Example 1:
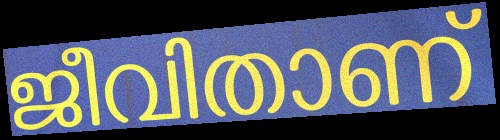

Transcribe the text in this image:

ജീവിതാണ്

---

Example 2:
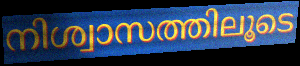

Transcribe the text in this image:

നിശ്വാസത്തിലൂടെ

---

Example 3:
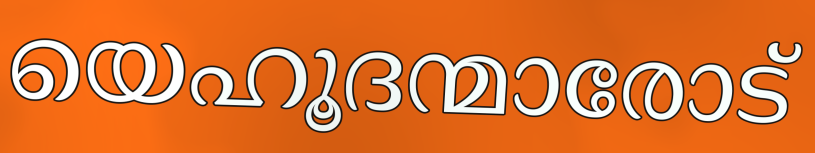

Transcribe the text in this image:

യെഹൂദന്മാരോട്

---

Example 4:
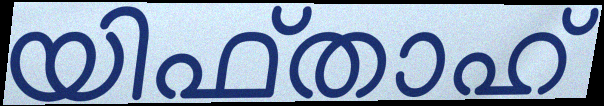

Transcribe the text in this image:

യിഫ്താഹ്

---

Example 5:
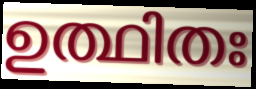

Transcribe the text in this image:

ഉത്ഥിതഃ